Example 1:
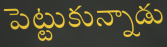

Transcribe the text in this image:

పెట్టుకున్నాడు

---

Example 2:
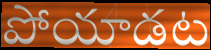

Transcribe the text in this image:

పోయాడట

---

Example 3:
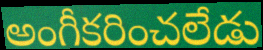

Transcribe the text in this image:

అంగీకరించలేడు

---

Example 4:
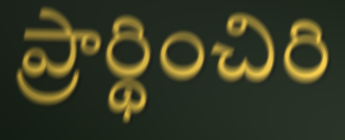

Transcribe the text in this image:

ప్రార్థించిరి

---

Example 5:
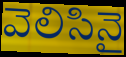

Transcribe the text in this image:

వెలిసినై